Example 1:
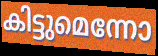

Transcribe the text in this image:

കിട്ടുമെന്നോ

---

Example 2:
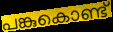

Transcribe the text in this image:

പങ്കുകൊണ്ട്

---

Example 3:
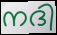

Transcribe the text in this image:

നദി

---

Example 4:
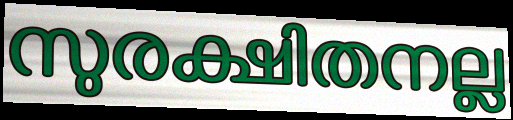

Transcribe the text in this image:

സുരക്ഷിതനല്ല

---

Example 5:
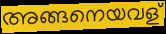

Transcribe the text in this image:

അങ്ങനെയവള്